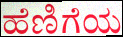
ಹೆಣಿಗೆಯ